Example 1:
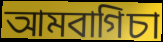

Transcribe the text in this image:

আমবাগিচা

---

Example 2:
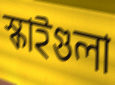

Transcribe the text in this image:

স্কাইগুলা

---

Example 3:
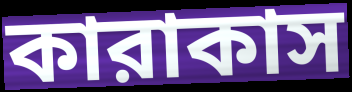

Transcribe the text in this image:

কারাকাস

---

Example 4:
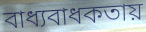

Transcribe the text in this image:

বাধ্যবাধকতায়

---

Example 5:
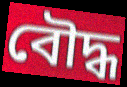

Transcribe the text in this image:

বৌদ্ধ